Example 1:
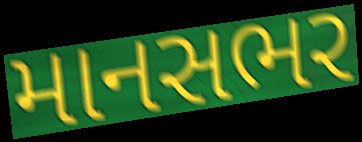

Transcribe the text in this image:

માનસભર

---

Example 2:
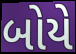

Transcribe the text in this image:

બોયે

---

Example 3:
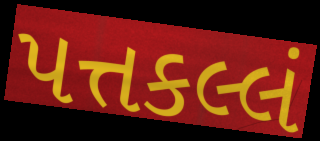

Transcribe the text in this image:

પત્તકલ્લં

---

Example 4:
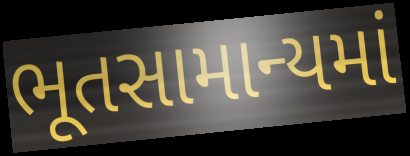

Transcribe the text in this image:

ભૂતસામાન્યમાં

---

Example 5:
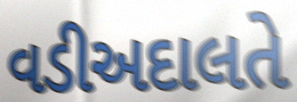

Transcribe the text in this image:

વડીઅદાલતે